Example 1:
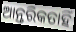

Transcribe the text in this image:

ଆନ୍ତରିକତାହିଁ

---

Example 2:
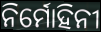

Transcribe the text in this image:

ନିର୍ମୋହିନୀ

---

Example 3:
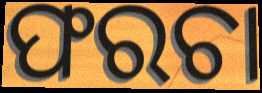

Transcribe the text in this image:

ଫରଚା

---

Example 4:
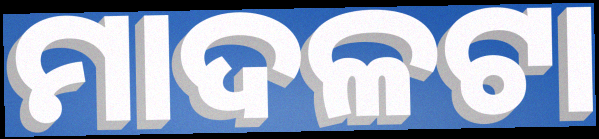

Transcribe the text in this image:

ମାଦଳଟା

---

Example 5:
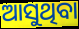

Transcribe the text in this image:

ଆସୁଥିବା